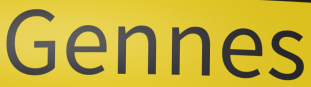
Gennes